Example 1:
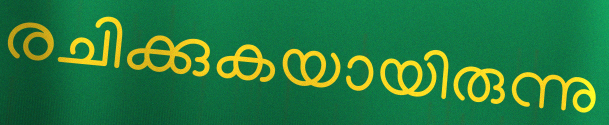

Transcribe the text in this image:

രചിക്കുകയായിരുന്നു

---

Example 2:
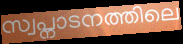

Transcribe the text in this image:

സ്വപ്നാടനത്തിലെ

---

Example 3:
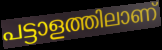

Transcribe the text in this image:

പട്ടാളത്തിലാണ്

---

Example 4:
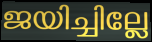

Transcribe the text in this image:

ജയിച്ചില്ലേ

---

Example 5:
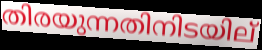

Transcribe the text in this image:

തിരയുന്നതിനിടയില്